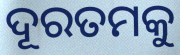
ଦୂରତମକୁ